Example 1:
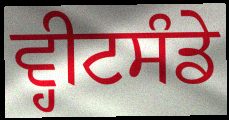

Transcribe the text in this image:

ਵ੍ਹੀਟਸੰਡੇ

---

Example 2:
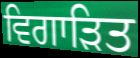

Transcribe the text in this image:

ਵਿਗਾੜਿਤ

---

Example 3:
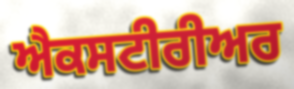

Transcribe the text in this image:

ਐਕਸਟੀਰੀਅਰ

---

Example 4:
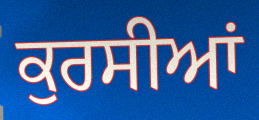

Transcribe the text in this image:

ਕੁਰਸੀਆਂ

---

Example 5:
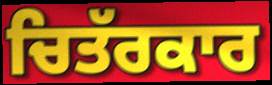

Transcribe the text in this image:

ਚਿਤੱਰਕਾਰ